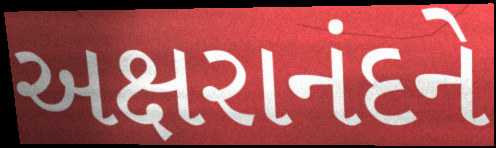
અક્ષરાનંદને